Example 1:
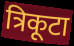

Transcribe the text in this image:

त्रिकूटा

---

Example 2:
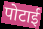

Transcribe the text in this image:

पोटाई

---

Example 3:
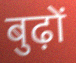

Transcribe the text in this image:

बुढ़ों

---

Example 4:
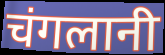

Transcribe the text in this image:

चंगलानी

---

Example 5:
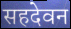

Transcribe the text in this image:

सहदेवन